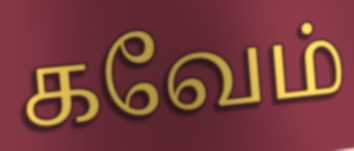
கவேம்